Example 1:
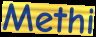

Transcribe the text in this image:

Methi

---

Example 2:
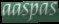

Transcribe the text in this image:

aaspas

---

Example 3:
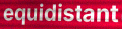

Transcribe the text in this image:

equidistant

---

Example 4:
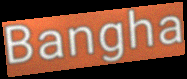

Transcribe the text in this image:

Bangha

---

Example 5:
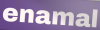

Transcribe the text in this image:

enamal